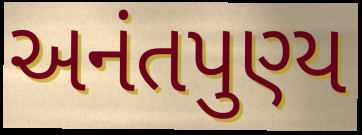
અનંતપુણ્ય